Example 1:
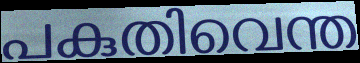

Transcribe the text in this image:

പകുതിവെന്ത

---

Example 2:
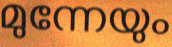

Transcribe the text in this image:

മുന്നേയും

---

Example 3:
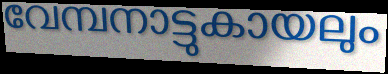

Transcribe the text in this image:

വേമ്പനാട്ടുകായലും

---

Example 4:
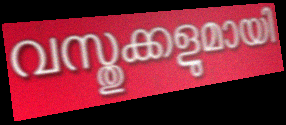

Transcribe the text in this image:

വസ്തുക്കളുമായി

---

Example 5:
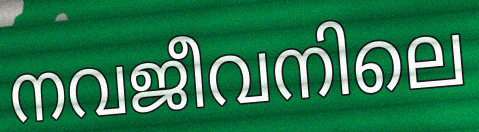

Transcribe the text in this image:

നവജീവനിലെ